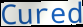
Cured